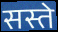
सस्ते